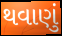
થવાણું